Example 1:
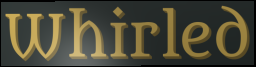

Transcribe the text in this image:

Whirled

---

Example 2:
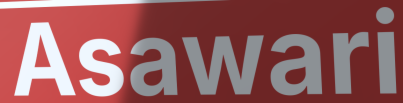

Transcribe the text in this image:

Asawari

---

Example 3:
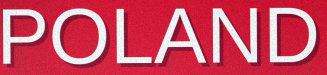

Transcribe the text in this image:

POLAND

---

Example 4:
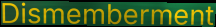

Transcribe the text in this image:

Dismemberment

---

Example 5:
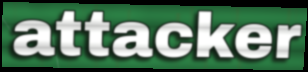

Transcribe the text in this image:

attacker